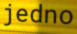
jedno